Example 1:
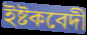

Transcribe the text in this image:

ইষ্টকবেদী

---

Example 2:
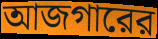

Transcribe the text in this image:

আজগারের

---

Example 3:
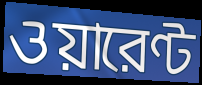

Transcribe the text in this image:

ওয়ারেণ্ট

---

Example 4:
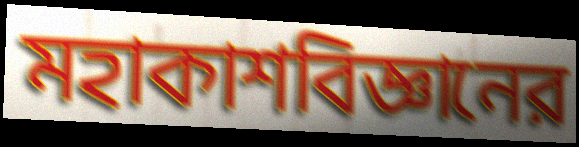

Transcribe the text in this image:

মহাকাশবিজ্ঞানের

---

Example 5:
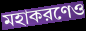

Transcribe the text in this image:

মহাকরণেও